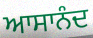
ਆਸਾਨੰਦ